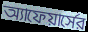
অ্যাফেয়ার্সের